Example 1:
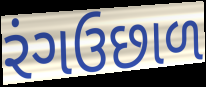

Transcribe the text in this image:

રંગઉછાળ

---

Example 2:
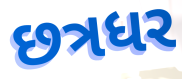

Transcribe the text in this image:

છત્રધર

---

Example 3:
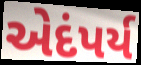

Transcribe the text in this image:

એદંપર્ય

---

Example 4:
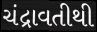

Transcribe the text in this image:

ચંદ્રાવતીથી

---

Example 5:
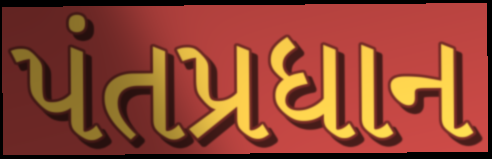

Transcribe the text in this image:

પંતપ્રધાન